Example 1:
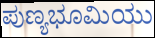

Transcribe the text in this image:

ಪುಣ್ಯಭೂಮಿಯು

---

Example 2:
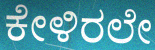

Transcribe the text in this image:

ಕೇಳಿರಲೇ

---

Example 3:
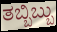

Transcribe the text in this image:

ತಬ್ಬಿಬ್ಬು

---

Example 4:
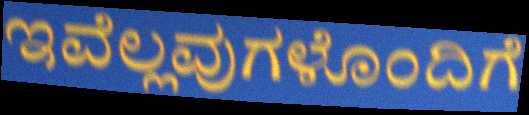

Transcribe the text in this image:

ಇವೆಲ್ಲವುಗಳೊಂದಿಗೆ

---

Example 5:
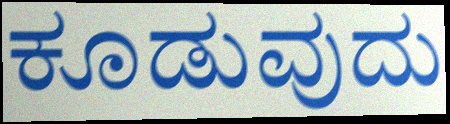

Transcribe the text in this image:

ಕೂಡುವುದು